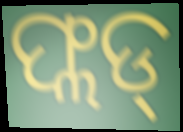
ଫ୍ଲଡ୍